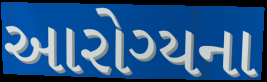
આરોગ્યના